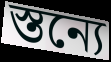
স্তন্যে